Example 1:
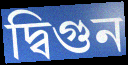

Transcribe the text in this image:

দ্বিগুন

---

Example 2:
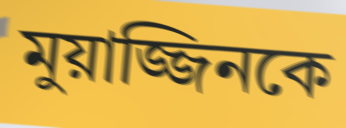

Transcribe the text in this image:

মুয়াজ্জিনকে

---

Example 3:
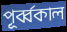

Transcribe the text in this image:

পূর্ব্বকাল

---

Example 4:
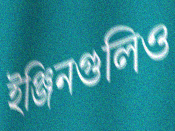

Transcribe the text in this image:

ইঞ্জিনগুলিও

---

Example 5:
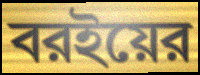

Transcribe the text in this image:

বরইয়ের